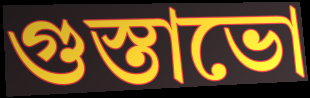
গুস্তাভো